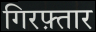
गिरफ़्तार